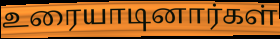
உரையாடினார்கள்